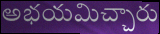
అభయమిచ్చారు